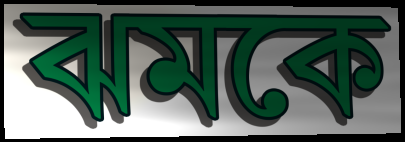
ঝমকে